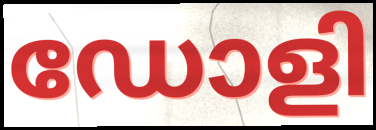
ഡോളി